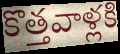
కొత్తవాళ్లకి